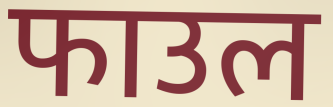
फाउल